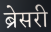
ब्रेसरी